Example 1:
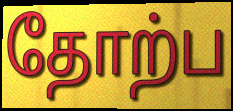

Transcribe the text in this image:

தோற்ப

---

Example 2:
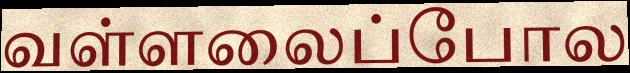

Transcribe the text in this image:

வள்ளலைப்போல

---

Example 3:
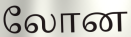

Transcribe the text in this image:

லோன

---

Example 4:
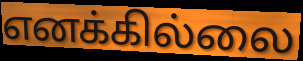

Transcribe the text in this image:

எனக்கில்லை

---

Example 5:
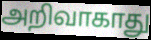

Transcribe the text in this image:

அறிவாகாது